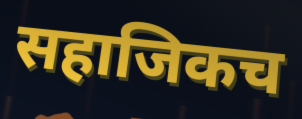
सहाजिकच